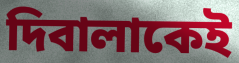
দিবালাকেই